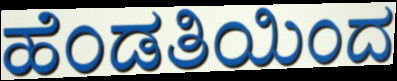
ಹೆಂಡತಿಯಿಂದ